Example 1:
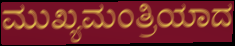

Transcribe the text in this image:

ಮುಖ್ಯಮಂತ್ರಿಯಾದ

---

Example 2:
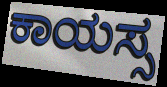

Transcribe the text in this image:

ಕಾಯಸ್ಸ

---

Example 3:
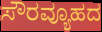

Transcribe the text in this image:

ಸೌರವ್ಯೂಹದ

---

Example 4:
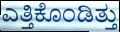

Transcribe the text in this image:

ಎತ್ತಿಕೊಂಡಿತ್ತು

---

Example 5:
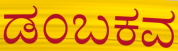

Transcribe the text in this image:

ಡಂಬಕವ